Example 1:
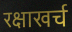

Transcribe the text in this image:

रक्षाखर्च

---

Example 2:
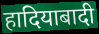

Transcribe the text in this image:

हादियाबादी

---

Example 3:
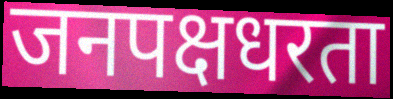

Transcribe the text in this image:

जनपक्षधरता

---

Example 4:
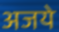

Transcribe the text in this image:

अजये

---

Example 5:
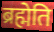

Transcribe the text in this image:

ब्रह्मेति